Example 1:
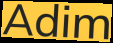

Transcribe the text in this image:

Adim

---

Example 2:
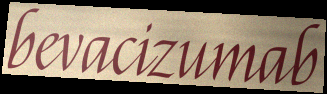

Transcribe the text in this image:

bevacizumab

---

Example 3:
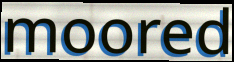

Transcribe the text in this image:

moored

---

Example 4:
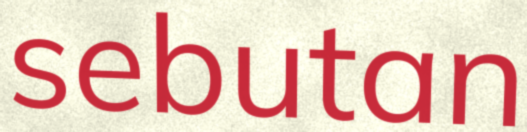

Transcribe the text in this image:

sebutan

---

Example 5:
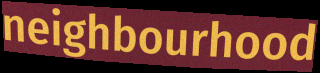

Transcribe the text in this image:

neighbourhood